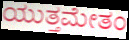
ಯುತ್ತಮೇತಂ